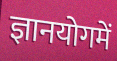
ज्ञानयोगमें